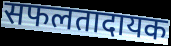
सफलतादायक